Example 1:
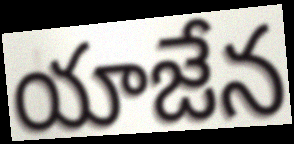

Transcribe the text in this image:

యాజేన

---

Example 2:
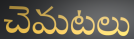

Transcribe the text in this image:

చెమటలు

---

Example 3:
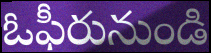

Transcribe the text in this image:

ఓఫీరునుండి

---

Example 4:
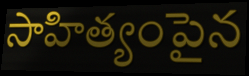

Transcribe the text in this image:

సాహిత్యంపైన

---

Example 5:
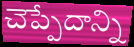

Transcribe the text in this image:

చెప్పేదాన్ని